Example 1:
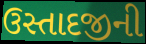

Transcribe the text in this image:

ઉસ્તાદજીની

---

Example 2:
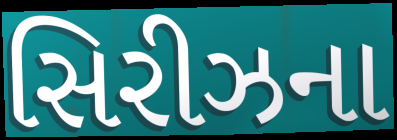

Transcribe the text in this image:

સિરીઝના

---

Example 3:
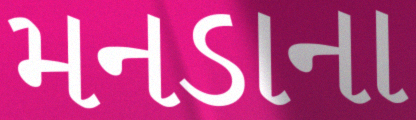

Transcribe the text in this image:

મનડાના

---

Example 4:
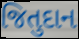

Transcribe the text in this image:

જિતુદાન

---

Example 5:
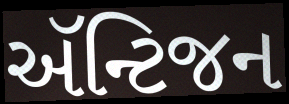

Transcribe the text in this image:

ઍન્ટિજન